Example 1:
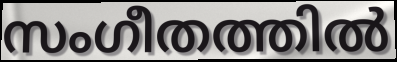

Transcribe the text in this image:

സംഗീതത്തിൽ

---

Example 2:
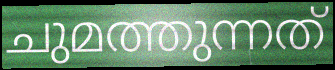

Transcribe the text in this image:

ചുമത്തുന്നത്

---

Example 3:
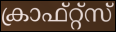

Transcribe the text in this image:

ക്രാഫ്റ്റ്സ്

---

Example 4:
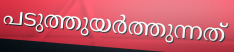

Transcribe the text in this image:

പടുത്തുയർത്തുന്നത്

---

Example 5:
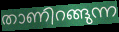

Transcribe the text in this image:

താണിറങ്ങുന്ന